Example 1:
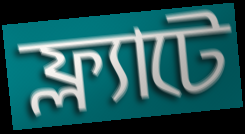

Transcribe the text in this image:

ফ্ল্যাটে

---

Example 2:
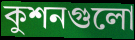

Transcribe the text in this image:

কুশনগুলো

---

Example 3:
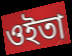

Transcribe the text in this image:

ওইতা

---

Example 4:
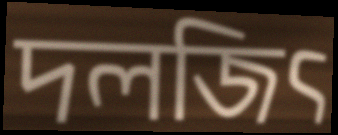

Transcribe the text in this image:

দলজিৎ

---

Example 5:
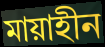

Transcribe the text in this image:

মায়াহীন